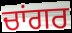
ਚਾਂਗਰ